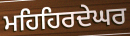
ਮਹਿਹਿਰਦੇਘਰ